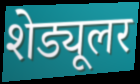
शेड्यूलर